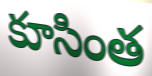
కూసింత